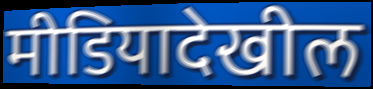
मीडियादेखील